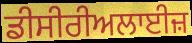
ਡੀਸੀਰੀਅਲਾਈਜ਼